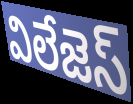
విలేజెస్